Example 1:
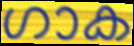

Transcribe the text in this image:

ഗാക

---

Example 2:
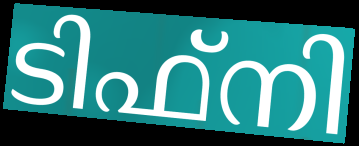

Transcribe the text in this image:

ടിഫ്നി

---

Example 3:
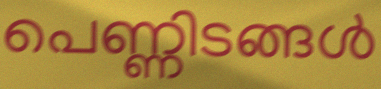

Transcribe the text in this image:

പെണ്ണിടങ്ങൾ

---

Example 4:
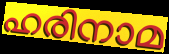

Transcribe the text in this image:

ഹരിനാമ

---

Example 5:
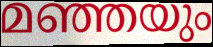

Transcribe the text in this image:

മഞ്ഞയും